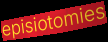
episiotomies